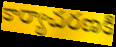
కార్యాచరణకి